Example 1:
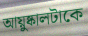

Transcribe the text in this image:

আয়ুষ্কালটাকে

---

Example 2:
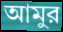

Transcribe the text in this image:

আমুর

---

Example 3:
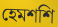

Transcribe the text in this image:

হেমশশি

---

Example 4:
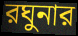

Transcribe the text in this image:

রঘুনার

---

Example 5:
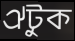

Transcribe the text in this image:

ঐটুক